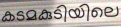
കടമകുടിയിലെ